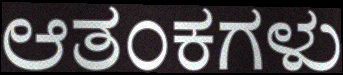
ಆತಂಕಗಳು